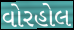
વોરહોલ